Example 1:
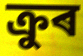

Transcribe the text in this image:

ক্ৰুৰ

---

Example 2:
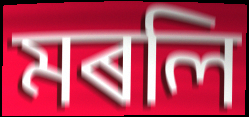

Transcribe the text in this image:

মৰলি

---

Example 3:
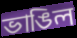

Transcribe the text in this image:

ভাঙিল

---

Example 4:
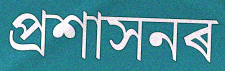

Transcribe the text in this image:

প্ৰশাসনৰ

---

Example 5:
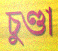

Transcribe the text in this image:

চুণ্ডা